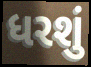
ધરશું